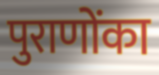
पुराणोंका